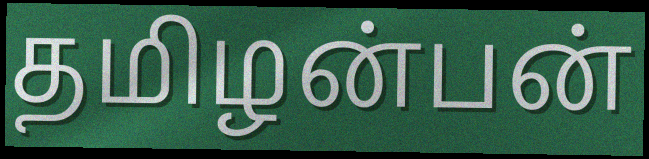
தமிழன்பன்